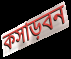
কসাড়বন